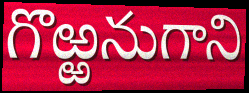
గొఱ్ఱనుగాని